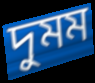
দুমম